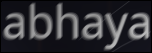
abhaya